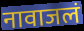
नावाजलं